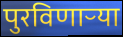
पुरविणाऱ्या